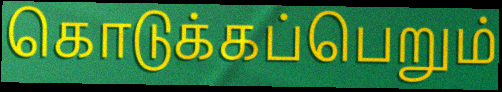
கொடுக்கப்பெறும்